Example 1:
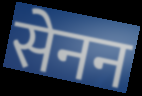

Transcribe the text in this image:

सेनन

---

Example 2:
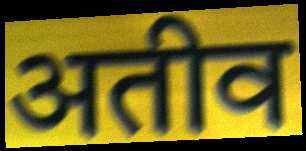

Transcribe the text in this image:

अतीव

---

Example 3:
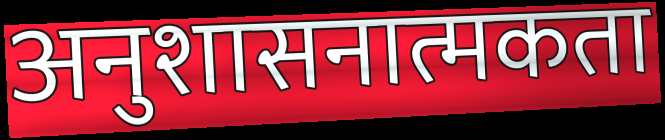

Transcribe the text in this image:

अनुशासनात्मकता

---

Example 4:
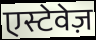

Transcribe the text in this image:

एस्टेवेज़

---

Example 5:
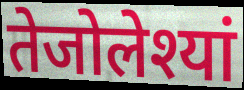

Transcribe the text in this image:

तेजोलेश्यां